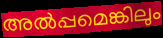
അൽപ്പമെങ്കിലും